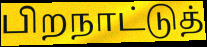
பிறநாட்டுத்